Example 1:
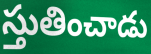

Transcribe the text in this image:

స్తుతించాడు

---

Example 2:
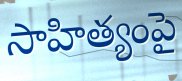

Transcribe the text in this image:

సాహిత్యంపై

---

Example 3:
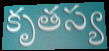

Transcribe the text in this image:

కృతస్య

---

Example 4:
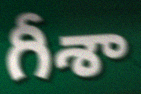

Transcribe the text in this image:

గీశా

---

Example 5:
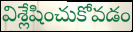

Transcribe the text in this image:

విశ్లేషించుకోవడం